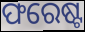
ଫରେଷ୍ଟ